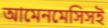
আমেনমেসিসই